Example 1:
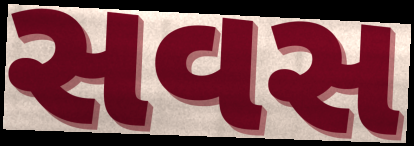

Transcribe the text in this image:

સવસ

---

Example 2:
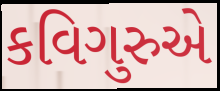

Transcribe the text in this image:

કવિગુરુએ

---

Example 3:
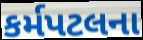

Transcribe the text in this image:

કર્મપટલના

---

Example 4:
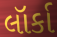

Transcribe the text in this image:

લૉર્કા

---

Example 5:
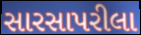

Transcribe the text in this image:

સારસાપરીલા